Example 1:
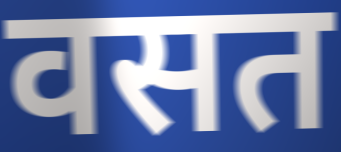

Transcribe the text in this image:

वसत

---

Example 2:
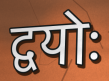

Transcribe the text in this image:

द्वयोः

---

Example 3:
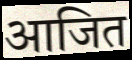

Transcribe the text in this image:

आजित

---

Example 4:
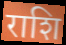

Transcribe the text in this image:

राशि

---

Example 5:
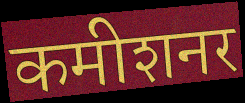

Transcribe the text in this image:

कमीशनर